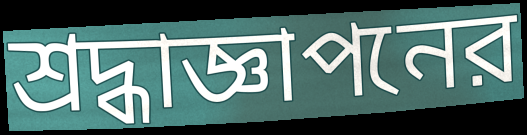
শ্রদ্ধাজ্ঞাপনের